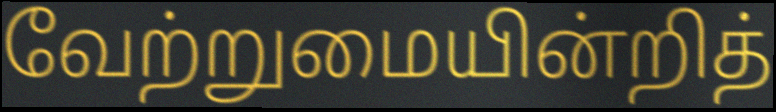
வேற்றுமையின்றித்